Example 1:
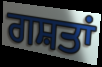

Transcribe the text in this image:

ਗਸ਼ਤਾਂ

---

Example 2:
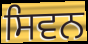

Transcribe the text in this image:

ਸਿਵਨ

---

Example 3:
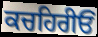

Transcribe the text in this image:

ਕਚਹਿਰੀਓਂ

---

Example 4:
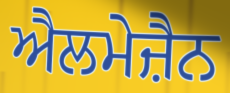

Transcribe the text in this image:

ਐਲਮੇਜ਼ੈਨ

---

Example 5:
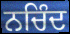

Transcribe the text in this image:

ਨਚਿੰਦ